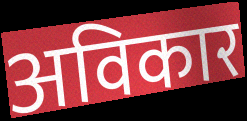
अविकार